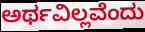
ಅರ್ಥವಿಲ್ಲವೆಂದು